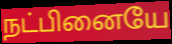
நட்பினையே